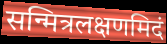
सन्मित्रलक्षणमिदं